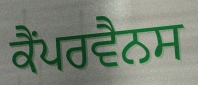
ਕੈਂਪਰਵੈਨਸ